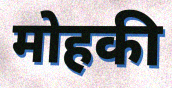
मोहकी